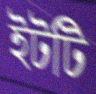
ইটটি